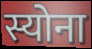
स्योना